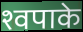
श्वपाके